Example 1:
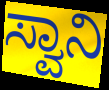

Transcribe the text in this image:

ಸ್ವಾನಿ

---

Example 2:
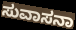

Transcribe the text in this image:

ಸುವಾಸನಾ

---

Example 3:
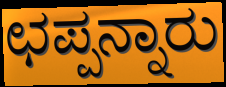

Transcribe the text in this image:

ಛಪ್ಪನ್ನಾರು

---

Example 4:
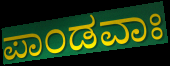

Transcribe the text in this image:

ಪಾಂಡವಾಃ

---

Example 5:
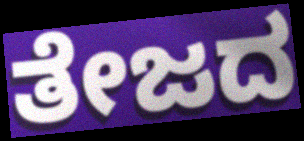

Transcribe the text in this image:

ತೇಜದ